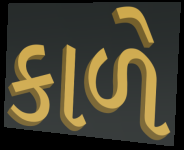
કાળે